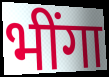
भींगा